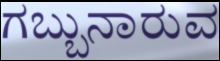
ಗಬ್ಬುನಾರುವ